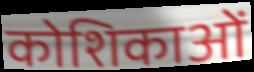
कोशिकाओं